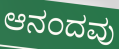
ಆನಂದವು